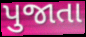
પુજાતા